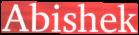
Abishek